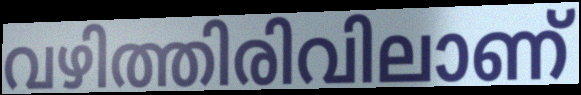
വഴിത്തിരിവിലാണ്